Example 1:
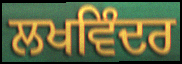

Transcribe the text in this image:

ਲਖਵਿੰਦਰ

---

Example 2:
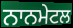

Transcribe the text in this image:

ਨਾਨਮੇਟਲ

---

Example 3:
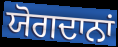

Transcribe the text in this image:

ਯੋਗਦਾਨਾਂ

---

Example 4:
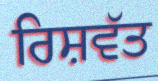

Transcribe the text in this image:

ਰਿਸ਼ਵੱਤ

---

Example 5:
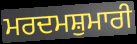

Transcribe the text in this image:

ਮਰਦਮਸ਼ੁਮਾਰੀ